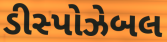
ડીસ્પોઝેબલ